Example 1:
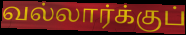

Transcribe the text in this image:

வல்லார்க்குப்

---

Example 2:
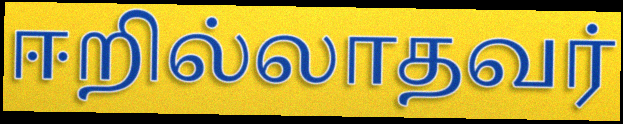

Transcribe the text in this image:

ஈறில்லாதவர்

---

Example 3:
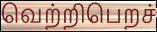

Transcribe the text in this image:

வெற்றிபெறச்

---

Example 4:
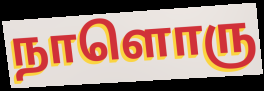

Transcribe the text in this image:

நாளொரு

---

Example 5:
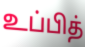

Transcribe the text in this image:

உப்பித்